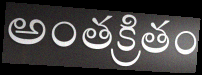
అంతక్రితం